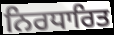
ਨਿਰਧਾਰਿਤ